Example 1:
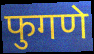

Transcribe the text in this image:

फुगणे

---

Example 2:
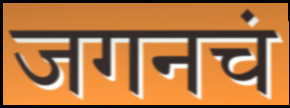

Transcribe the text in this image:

जगनचं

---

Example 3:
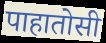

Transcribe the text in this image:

पाहातोसी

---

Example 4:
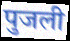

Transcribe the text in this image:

पुजली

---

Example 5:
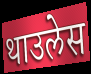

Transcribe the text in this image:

थाउलेस